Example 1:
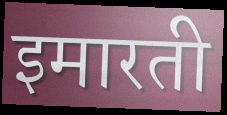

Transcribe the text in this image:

इमारती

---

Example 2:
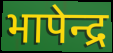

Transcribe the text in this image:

भापेन्द्र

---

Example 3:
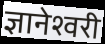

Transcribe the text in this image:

ज्ञानेश्वरी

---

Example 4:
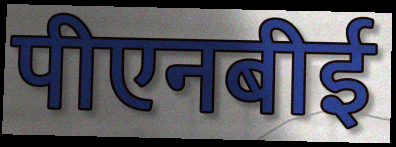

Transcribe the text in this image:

पीएनबीई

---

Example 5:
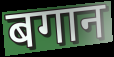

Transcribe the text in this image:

बगान